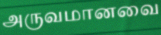
அருவமானவை